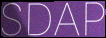
SDAP